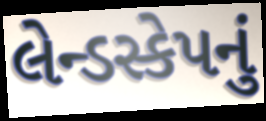
લેન્ડસ્કેપનું